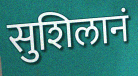
सुशिलानं